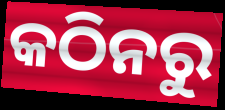
କଠିନରୁ